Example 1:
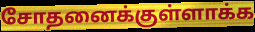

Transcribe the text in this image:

சோதனைக்குள்ளாக்க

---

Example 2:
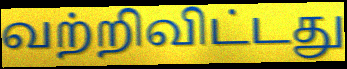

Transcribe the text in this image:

வற்றிவிட்டது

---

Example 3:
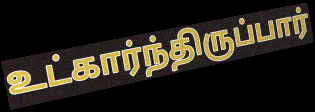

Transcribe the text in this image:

உட்கார்ந்திருப்பார்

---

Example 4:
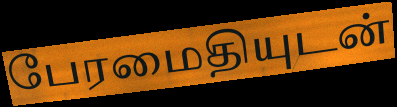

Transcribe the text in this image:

பேரமைதியுடன்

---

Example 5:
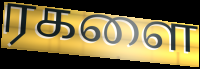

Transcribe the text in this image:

ரகளை